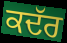
ਕਦੱਰ